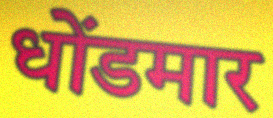
धोंडमार